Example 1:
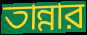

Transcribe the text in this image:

তান্নার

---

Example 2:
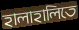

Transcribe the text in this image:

হালাহালিতে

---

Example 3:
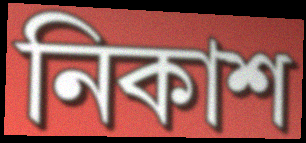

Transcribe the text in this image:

নিকাশ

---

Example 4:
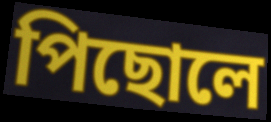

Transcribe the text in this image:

পিছোলে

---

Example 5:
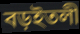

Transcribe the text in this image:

বড়ইতলী